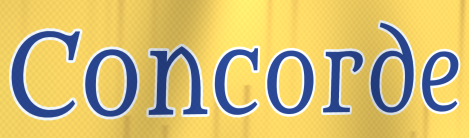
Concorde